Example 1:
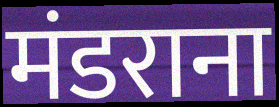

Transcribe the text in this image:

मंडराना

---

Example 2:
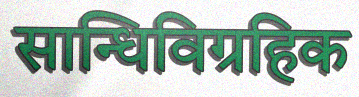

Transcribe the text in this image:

सान्धिविग्रहिक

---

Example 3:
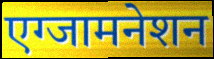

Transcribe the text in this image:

एग्जामनेशन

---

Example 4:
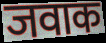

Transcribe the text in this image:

जवाक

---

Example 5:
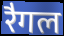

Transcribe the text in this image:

रैगल